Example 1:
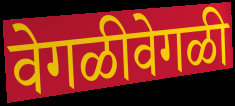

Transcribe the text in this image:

वेगळीवेगळी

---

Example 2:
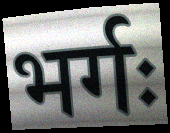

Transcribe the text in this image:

भर्गः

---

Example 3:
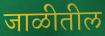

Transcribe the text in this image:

जाळीतील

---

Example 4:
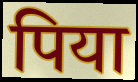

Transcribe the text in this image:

पिया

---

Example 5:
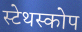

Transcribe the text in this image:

स्टेथस्कोप